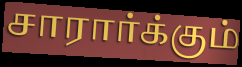
சாரார்க்கும்